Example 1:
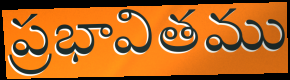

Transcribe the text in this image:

ప్రభావితము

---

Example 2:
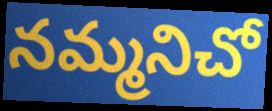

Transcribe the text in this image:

నమ్మనిచో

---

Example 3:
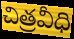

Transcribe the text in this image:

చిత్రవీధి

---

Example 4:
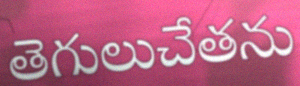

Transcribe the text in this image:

తెగులుచేతను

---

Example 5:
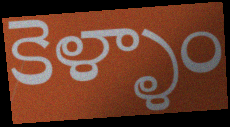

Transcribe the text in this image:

కెళ్ళాం